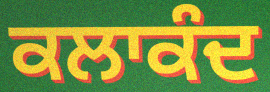
ਕਲਾਕੰਦ